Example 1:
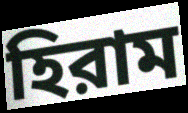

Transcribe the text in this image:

হিরাম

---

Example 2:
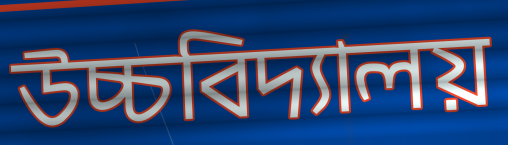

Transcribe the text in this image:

উচ্চবিদ্যালয়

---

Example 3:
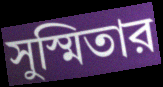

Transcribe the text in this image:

সুস্মিতার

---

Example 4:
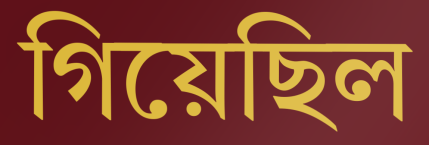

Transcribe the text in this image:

গিয়েছিল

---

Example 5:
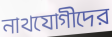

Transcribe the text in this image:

নাথযোগীদের